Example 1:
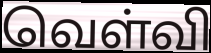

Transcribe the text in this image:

வெள்வி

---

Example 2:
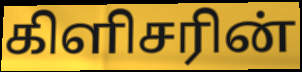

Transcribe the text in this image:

கிளிசரின்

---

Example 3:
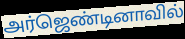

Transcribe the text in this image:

அர்ஜெண்டினாவில்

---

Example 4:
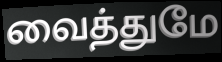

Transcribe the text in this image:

வைத்துமே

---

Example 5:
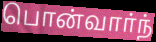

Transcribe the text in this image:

பொன்வார்ந்